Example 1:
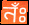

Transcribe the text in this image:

নঁঃ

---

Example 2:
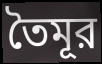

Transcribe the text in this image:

তৈমূর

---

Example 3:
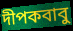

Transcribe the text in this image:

দীপকবাবু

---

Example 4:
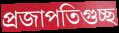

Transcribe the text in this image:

প্রজাপতিগুচ্ছ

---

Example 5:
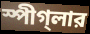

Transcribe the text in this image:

স্পীগ্‌লার